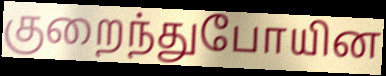
குறைந்துபோயின